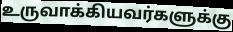
உருவாக்கியவர்களுக்கு